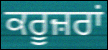
ਕਰੂਜ਼ਰਾਂ